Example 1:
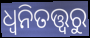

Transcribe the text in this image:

ଧ୍ୱନିତତ୍ତ୍ୱରୁ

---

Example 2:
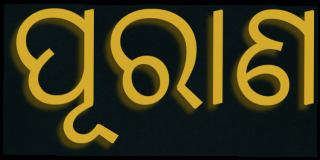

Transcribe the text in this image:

ପୂରାଣ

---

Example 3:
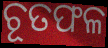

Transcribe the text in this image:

ଚୂତଫଳ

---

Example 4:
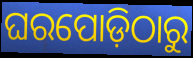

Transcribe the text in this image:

ଘରପୋଡ଼ିଠାରୁ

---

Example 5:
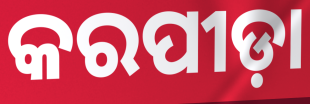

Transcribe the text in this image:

କରପୀଡ଼ା